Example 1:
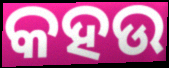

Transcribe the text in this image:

କହଉ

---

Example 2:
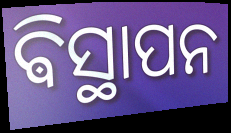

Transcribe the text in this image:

ଵିସ୍ଥାପନ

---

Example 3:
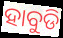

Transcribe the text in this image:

ହାବୁଡି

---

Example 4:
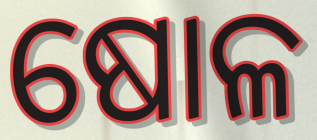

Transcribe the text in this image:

ଷୋଳ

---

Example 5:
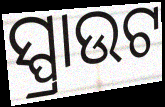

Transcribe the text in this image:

ସ୍ପ୍ରାଉଟ